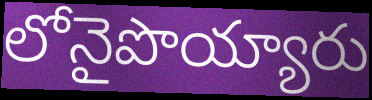
లోనైపొయ్యారు